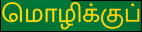
மொழிக்குப்